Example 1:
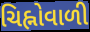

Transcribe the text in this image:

ચિહ્નોવાળી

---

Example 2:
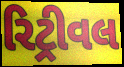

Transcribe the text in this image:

રિટ્રીવલ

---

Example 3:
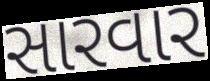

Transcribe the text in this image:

સારવાર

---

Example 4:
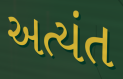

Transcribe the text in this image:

અત્યંત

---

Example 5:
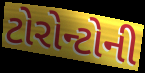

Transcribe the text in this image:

ટોરોન્ટોની